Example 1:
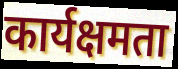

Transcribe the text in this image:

कार्यक्षमता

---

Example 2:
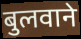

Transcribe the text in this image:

बुलवाने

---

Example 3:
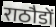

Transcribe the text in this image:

राठौडों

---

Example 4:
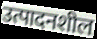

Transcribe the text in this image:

उत्पादनशील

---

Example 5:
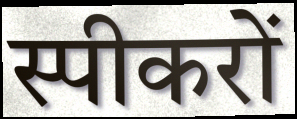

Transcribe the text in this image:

स्पीकरों